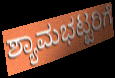
ಶ್ಯಾಮಭಟ್ಟರಿಗೆ